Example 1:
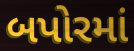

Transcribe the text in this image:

બપોરમાં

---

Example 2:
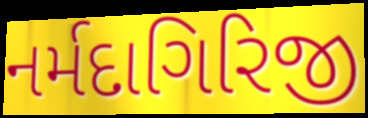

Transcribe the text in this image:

નર્મદાગિરિજી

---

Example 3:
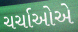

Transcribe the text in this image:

ચર્ચાઓએ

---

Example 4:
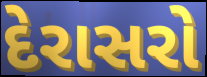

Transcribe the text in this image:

દેરાસરો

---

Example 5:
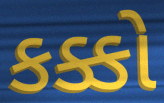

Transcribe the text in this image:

કક્કો